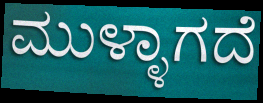
ಮುಳ್ಳಾಗದೆ